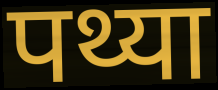
पथ्या